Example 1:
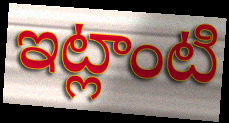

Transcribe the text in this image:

ఇట్లాంటి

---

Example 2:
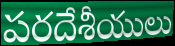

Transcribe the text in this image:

పరదేశీయులు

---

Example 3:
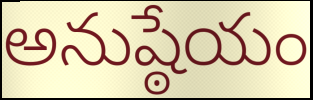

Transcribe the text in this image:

అనుష్ఠేయం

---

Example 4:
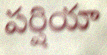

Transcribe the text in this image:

పర్షియా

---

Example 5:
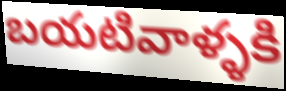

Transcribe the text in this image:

బయటివాళ్ళకి